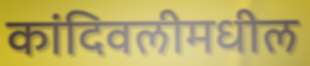
कांदिवलीमधील